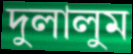
দুলালুম